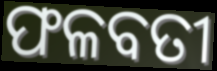
ଫଳବତୀ